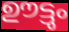
ഊട്ടും